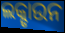
ଲକ୍ଡାଉନ